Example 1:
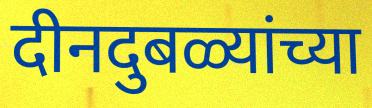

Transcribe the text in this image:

दीनदुबळ्यांच्या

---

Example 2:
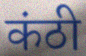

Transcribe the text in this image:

कंठी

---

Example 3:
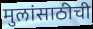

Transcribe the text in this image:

मुलांसाठीची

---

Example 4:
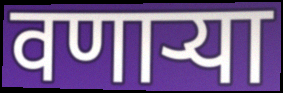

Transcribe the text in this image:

वणाऱ्या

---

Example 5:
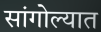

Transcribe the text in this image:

सांगोल्यात